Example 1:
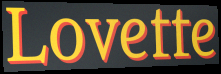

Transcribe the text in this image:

Lovette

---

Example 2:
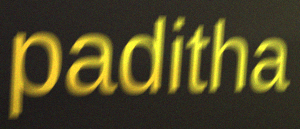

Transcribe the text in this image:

paditha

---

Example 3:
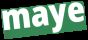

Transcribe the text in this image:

maye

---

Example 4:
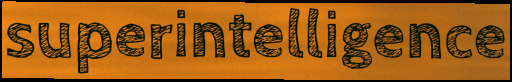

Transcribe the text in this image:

superintelligence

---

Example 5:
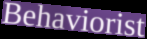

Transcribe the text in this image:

Behaviorist